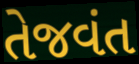
તેજવંત